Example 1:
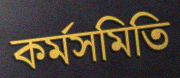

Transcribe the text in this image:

কর্মসমিতি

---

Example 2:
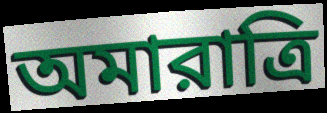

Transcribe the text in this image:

অমারাত্রি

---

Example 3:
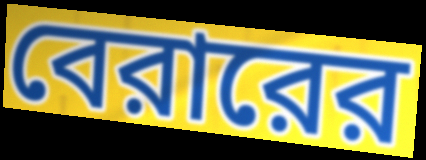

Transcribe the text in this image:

বেরারের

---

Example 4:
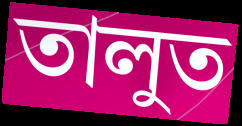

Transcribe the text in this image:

তালুত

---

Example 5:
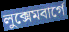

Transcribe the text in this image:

লুক্সেমবার্গে